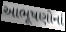
આભૂષણોનાં